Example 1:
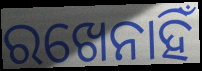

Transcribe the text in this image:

ରଖେନାହିଁ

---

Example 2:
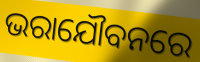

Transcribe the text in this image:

ଭରାଯୌବନରେ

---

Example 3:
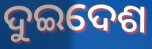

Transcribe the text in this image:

ଦୁଇଦେଶ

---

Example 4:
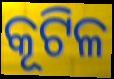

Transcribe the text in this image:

କୂଟିଳ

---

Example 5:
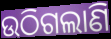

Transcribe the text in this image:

ଉଠିଗଲାଣି